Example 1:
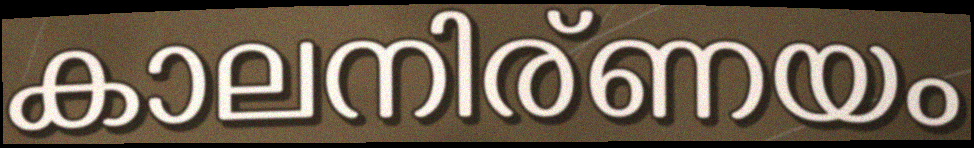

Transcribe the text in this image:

കാലനിര്ണയം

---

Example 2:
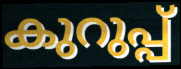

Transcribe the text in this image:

കുറുപ്പ്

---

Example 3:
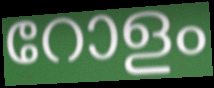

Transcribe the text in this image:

റോളം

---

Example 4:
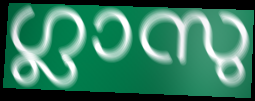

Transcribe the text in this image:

ഗ്ലാസു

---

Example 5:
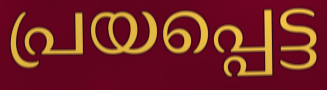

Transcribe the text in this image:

പ്രയപ്പെട്ട